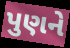
પુણને